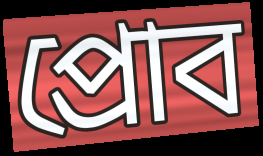
প্রোব